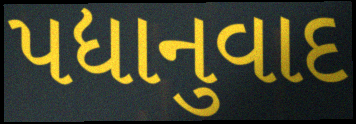
પદ્યાનુવાદ